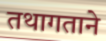
तथागताने